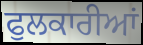
ਫੁਲਕਾਰੀਆਂ